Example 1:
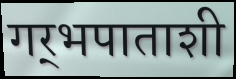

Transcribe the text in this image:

गर्भपाताशी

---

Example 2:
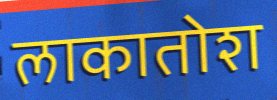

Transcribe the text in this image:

लाकातोश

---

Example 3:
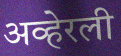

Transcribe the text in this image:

अव्हेरली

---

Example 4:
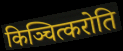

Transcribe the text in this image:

किञ्चित्करोति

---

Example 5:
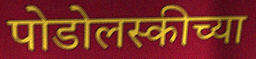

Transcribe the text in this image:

पोडोलस्कीच्या